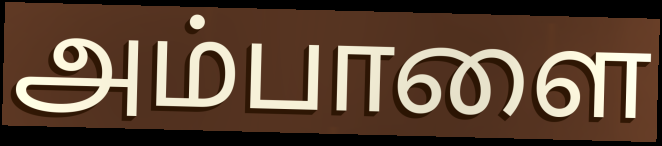
அம்பாளை